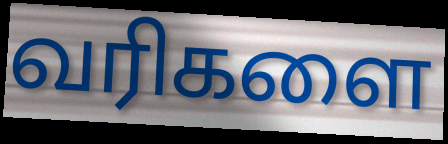
வரிகளை